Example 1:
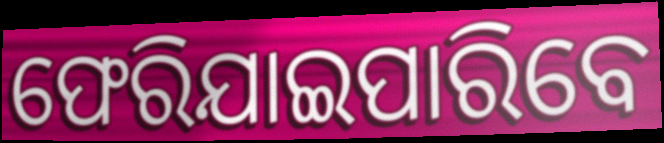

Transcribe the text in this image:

ଫେରିଯାଇପାରିବେ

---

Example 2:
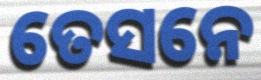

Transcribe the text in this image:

ତେସନେ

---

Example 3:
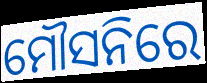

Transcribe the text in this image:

ମୌସନିରେ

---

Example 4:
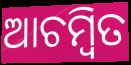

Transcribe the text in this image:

ଆଚମ୍ବିତ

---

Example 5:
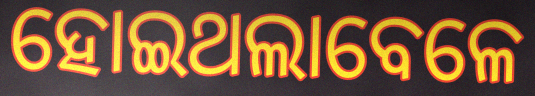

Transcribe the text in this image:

ହୋଇଥଲାବେଳେ